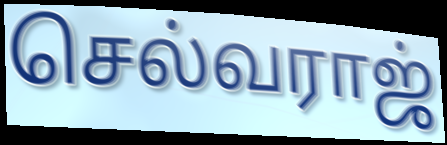
செல்வராஜ்